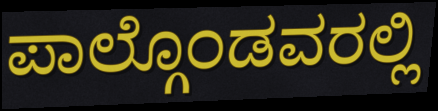
ಪಾಲ್ಗೊಂಡವರಲ್ಲಿ